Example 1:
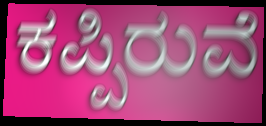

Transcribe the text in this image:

ಕಪ್ಪಿರುವೆ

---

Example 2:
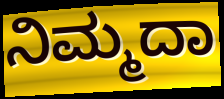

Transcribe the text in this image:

ನಿಮ್ಮದಾ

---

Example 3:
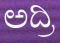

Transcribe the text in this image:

ಅದ್ರಿ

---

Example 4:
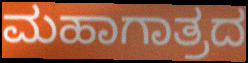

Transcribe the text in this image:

ಮಹಾಗಾತ್ರದ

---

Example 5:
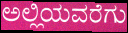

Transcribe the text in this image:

ಅಲ್ಲಿಯವರೆಗು